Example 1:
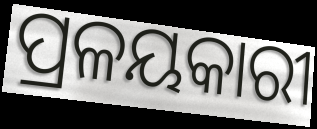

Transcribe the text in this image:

ପ୍ରଳୟକାରୀ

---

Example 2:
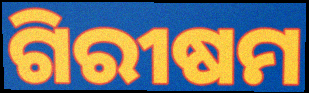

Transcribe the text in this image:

ଗିରୀଷମ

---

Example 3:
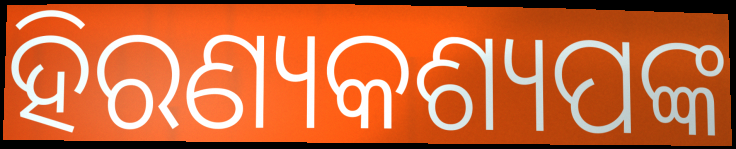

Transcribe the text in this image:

ହିରଣ୍ୟକଶ୍ୟପଙ୍କ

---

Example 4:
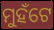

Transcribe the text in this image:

ମୁହଁଟେ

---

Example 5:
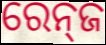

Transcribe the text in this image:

ରେନ୍‍ଜ